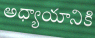
అధ్యాయానికి